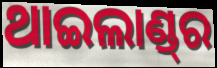
ଥାଇଲାଣ୍ଡ୍‌ର